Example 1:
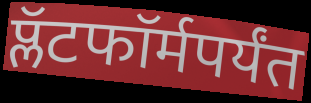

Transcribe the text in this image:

प्लॅटफॉर्मपर्यंत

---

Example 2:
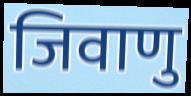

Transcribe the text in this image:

जिवाणु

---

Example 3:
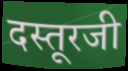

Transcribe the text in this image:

दस्तूरजी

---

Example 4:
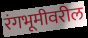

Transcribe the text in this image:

रंगभूमीवरील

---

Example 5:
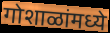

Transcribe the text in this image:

गोशाळांमध्ये